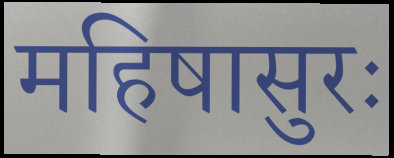
महिषासुरः